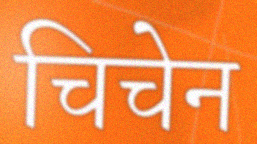
चिचेन